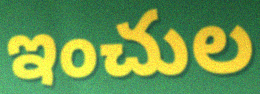
ఇంచుల